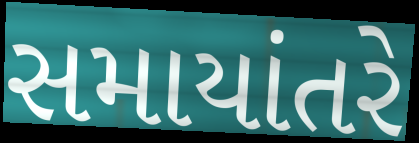
સમાયાંતરે